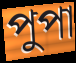
পুপা